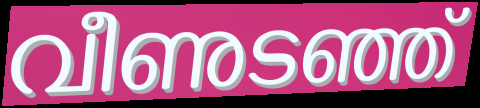
വീണുടഞ്ഞ്